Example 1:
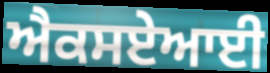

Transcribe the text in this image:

ਐਕਸਏਆਈ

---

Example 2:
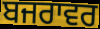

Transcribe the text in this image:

ਬਜਰਾਵਰ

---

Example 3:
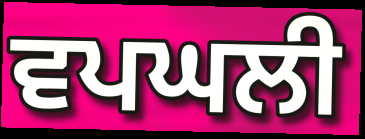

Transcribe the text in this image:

ਵਪਘਲੀ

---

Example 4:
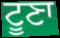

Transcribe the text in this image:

ਟੂਣਾ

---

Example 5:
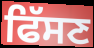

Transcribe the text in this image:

ਫਿੱਸਣ